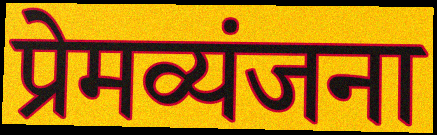
प्रेमव्यंजना